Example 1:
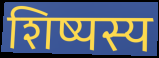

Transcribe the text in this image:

शिष्यस्य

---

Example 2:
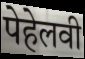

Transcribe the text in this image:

पेहेलवी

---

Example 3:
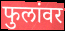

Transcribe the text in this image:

फुलांवर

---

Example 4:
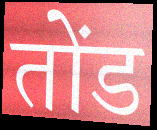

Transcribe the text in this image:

तोंड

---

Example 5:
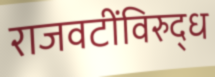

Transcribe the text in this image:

राजवटींविरुद्ध